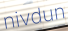
nivdun